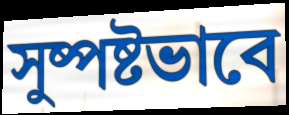
সুষ্পষ্টভাবে